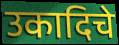
उकादिचे